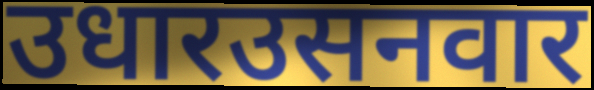
उधारउसनवार